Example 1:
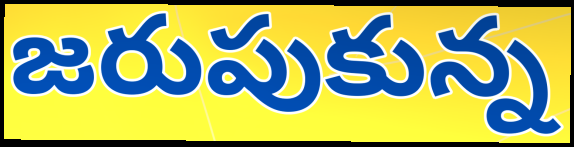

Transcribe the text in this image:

జరుపుకున్న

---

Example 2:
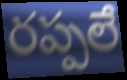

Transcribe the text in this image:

రప్పలే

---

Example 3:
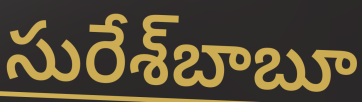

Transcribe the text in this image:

సురేశ్‌బాబూ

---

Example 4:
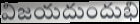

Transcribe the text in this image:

విజయదుందుభి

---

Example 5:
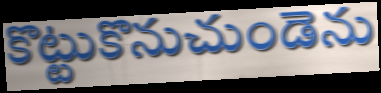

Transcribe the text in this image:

కొట్టుకొనుచుండెను